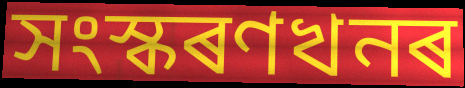
সংস্কৰণখনৰ